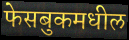
फेसबुकमधील